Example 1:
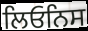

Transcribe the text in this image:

ਲਿਓਨਿਸ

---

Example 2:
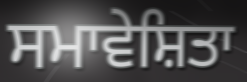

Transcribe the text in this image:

ਸਮਾਵੇਸ਼ਿਤਾ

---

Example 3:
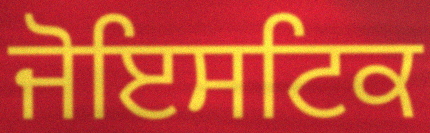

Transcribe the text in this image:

ਜੋਇਸਟਿਕ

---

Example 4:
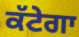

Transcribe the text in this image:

ਕੱਟੇਗਾ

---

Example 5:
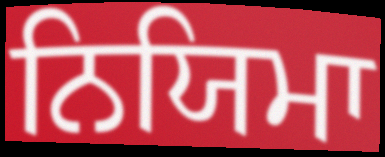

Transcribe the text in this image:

ਨਿਯਿਮਾ